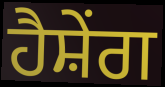
ਹੈਸ਼ੇਂਗ